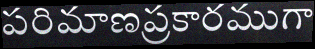
పరిమాణప్రకారముగా